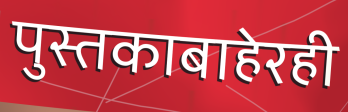
पुस्तकाबाहेरही